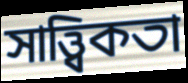
সাত্ত্বিকতা